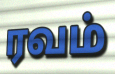
ரவம்